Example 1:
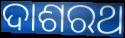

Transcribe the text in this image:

ଦାଶରଥ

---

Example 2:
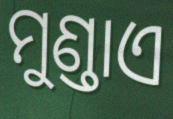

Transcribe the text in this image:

ମୁଣ୍ଡାଏ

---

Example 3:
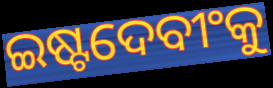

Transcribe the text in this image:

ଇଷ୍ଟଦେବୀଂକୁ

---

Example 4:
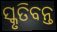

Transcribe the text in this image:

ସ୍କୃତିବନ୍ତ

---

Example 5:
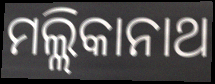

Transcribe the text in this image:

ମଲ୍ଲିକାନାଥ